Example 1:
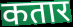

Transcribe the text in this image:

कतार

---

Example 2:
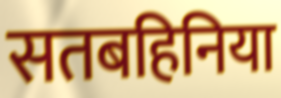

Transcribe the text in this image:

सतबहिनिया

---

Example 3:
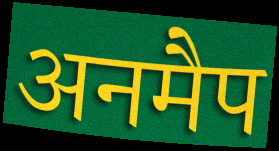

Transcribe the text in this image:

अनमैप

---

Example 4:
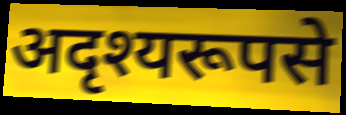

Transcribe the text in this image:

अदृश्यरूपसे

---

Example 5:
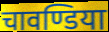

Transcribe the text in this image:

चावण्डिया